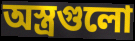
অস্ত্রগুলো